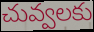
చువ్వలకు